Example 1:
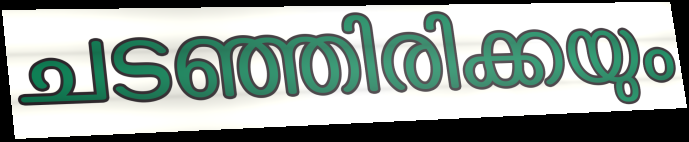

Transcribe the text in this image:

ചടഞ്ഞിരിക്കയും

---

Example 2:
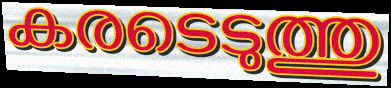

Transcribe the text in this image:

കരടെടുത്തു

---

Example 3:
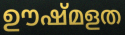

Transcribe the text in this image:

ഊഷ്മളത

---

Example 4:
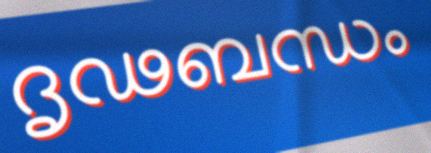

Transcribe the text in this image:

ദൃഢബന്ധം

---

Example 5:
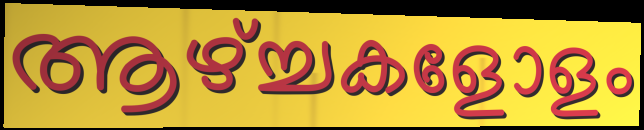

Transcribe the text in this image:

ആഴ്ച്ചകളോളം